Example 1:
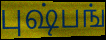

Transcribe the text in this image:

புஷ்பங்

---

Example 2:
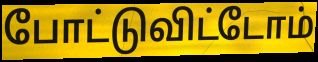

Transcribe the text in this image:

போட்டுவிட்டோம்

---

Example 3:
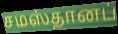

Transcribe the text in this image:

சமஸ்தானப்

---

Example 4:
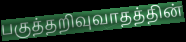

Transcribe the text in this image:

பகுத்தறிவுவாதத்தின்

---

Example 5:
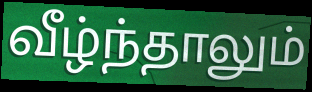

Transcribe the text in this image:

வீழ்ந்தாலும்